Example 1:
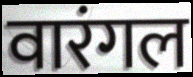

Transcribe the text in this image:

वारंगल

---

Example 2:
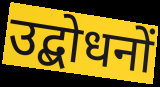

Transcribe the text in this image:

उद्बोधनों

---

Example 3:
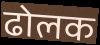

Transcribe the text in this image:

ढोलक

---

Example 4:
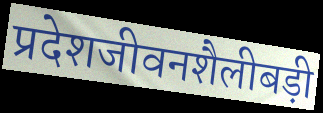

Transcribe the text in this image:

प्रदेशजीवनशैलीबड़ी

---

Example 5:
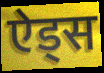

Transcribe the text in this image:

ऐड्स